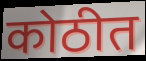
कोठीत